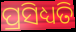
ପ୍ରସିଧ୍ୟତି